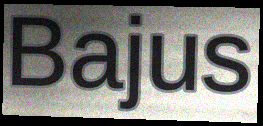
Bajus